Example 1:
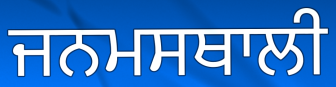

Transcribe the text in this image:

ਜਨਮਸਥਾਲੀ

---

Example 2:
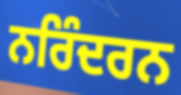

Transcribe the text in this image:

ਨਰਿੰਦਰਨ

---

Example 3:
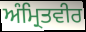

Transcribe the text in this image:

ਅੰਮ੍ਰਿਤਵੀਰ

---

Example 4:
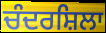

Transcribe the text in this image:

ਚੰਦਰਸ਼ਿਲਾ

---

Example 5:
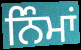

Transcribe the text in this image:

ਨਿੰਮਾਂ